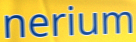
nerium